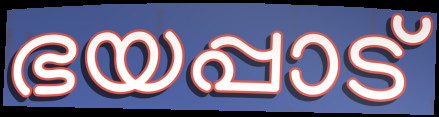
ഭയപ്പാട്